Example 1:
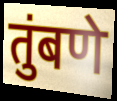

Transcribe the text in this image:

तुंबणे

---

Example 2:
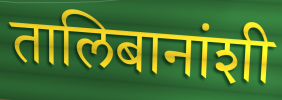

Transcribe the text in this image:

तालिबानांशी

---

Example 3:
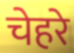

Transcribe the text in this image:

चेहरे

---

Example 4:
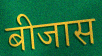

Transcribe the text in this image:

बीजास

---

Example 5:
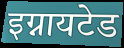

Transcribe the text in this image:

इग्नायटेड